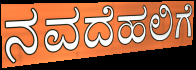
ನವದೆಹಲಿಗೆ